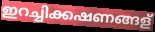
ഇറച്ചിക്കഷണങ്ങള്